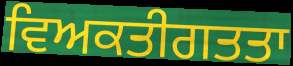
ਵਿਅਕਤੀਗਤਤਾ